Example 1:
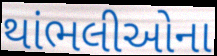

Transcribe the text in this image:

થાંભલીઓના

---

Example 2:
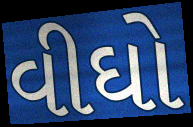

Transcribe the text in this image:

વીઘો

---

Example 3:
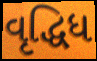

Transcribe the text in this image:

વૃદ્ધિધ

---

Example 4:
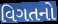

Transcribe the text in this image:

વિગતનો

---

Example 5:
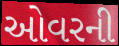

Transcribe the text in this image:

ઓવરની